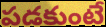
పడకుంటే